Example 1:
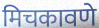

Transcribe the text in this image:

मिचकावणे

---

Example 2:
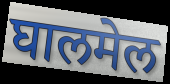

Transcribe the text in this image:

घालमेल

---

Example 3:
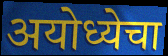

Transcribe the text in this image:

अयोध्येचा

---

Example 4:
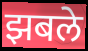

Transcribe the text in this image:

झबले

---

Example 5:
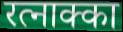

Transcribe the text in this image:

रत्नाक्का